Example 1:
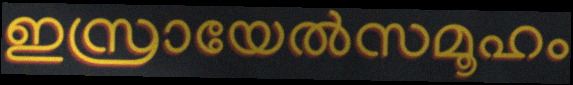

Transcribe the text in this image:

ഇസ്രായേൽസമൂഹം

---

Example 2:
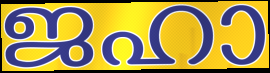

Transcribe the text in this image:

ജഹാ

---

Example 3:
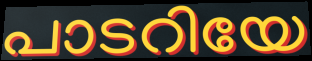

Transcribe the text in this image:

പാടറിയേ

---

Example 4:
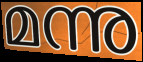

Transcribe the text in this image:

മന്നു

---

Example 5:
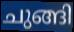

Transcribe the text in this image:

ചുങ്ങി